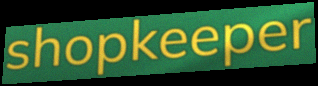
shopkeeper